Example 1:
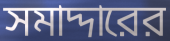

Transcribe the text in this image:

সমাদ্দারের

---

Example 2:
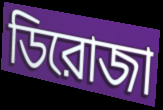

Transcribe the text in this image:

ডিরোজা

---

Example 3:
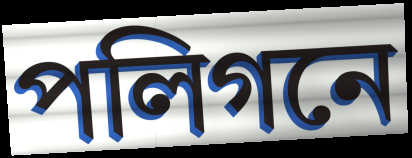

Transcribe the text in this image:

পলিগনে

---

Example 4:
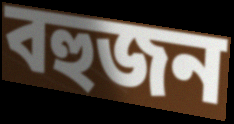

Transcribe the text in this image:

বহুজন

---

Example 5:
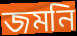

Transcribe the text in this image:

জমনি